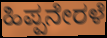
ಹಿಪ್ಪನೇರಳೆ